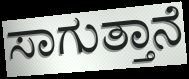
ಸಾಗುತ್ತಾನೆ